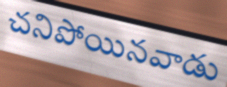
చనిపోయినవాడు